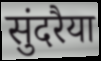
सुंदरैया